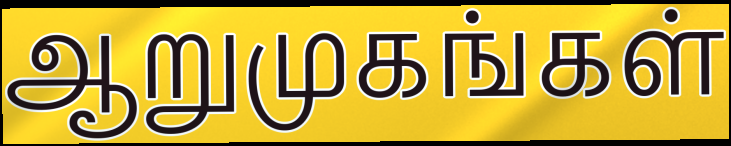
ஆறுமுகங்கள்